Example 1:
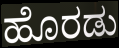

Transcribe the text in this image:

ಹೊರಡು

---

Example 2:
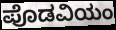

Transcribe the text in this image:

ಪೊಡವಿಯಂ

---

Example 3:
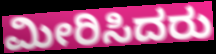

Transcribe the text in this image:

ಮೀರಿಸಿದರು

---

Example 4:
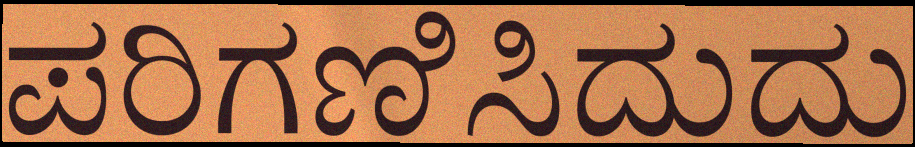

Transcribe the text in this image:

ಪರಿಗಣಿಸಿದುದು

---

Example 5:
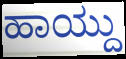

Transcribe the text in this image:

ಹಾಯ್ದು